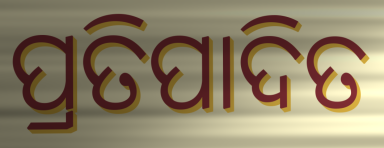
ପ୍ରତିପାଦିତ